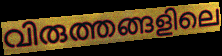
വിരുത്തങ്ങളിലെ